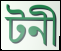
টনী